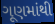
ગૂણમાંથી